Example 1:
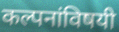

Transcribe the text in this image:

कल्पनांविषयी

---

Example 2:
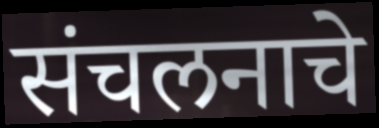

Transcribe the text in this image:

संचलनाचे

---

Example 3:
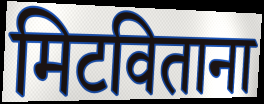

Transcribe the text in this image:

मिटविताना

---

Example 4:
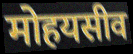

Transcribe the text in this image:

मोहयसीव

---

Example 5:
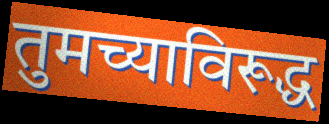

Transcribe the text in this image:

तुमच्याविरूद्ध